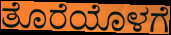
ತೊರೆಯೊಳಗೆ